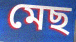
মেছ